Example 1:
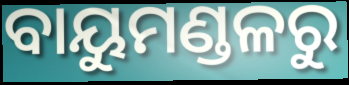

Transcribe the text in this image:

ବାୟୁମଣ୍ଡଳରୁ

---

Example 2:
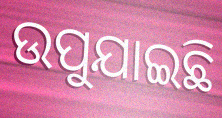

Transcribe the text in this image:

ଉପୁଯାଇଛି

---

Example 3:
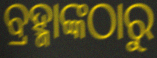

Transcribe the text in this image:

ବ୍ରହ୍ମାଙ୍କଠାରୁ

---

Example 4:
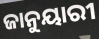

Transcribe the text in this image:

ଜାନୁୟାରୀ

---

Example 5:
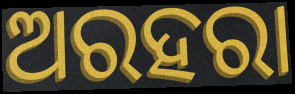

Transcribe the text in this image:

ଅରହରା